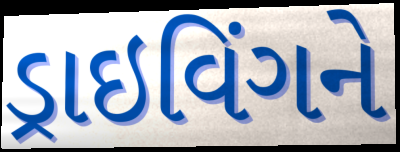
ડ્રાઇવિંગને